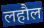
लहौल